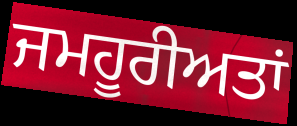
ਜਮਹੂਰੀਅਤਾਂ